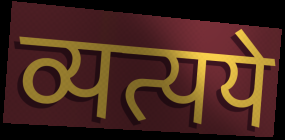
व्यत्यये